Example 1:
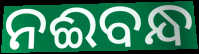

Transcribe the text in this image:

ନଈବନ୍ଧ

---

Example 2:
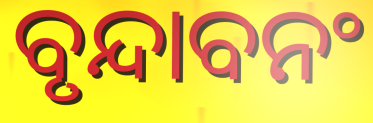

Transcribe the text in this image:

ବୃନ୍ଦାବନଂ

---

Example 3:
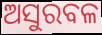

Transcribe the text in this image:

ଅସୁରବଳ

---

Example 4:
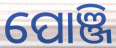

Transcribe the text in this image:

ପୋଞ୍ଜି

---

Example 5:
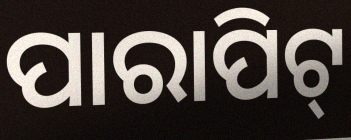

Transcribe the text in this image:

ପାରାପିଟ୍